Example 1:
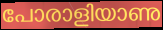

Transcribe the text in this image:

പോരാളിയാണു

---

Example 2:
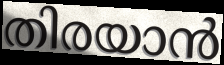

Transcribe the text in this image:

തിരയാൻ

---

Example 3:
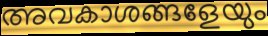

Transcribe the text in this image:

അവകാശങ്ങളേയും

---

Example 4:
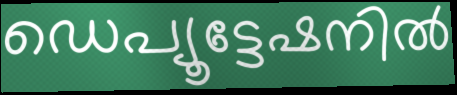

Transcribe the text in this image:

ഡെപ്യൂട്ടേഷനിൽ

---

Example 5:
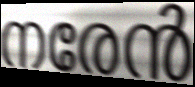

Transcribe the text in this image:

നരേൻ